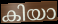
കിയാ